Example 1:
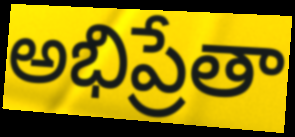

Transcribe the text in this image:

అభిప్రేతా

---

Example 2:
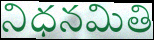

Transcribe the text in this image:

నిధనమితి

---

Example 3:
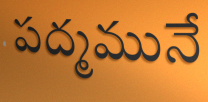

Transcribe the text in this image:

పద్మమునే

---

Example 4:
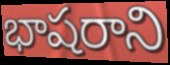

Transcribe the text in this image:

భాషరాని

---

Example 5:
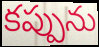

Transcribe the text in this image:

కప్పును